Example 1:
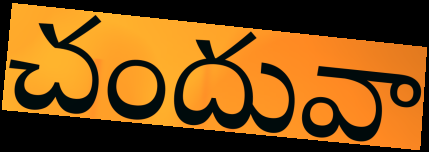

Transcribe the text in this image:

చందువా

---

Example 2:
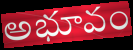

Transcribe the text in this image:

అభూవం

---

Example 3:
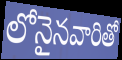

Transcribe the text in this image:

లోనైనవారితో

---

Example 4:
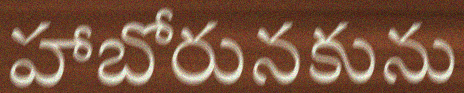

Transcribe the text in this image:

హాబోరునకును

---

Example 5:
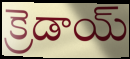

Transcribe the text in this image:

క్రెడాయ్